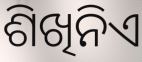
ଶିଖିନିଏ